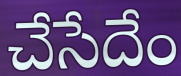
చేసేదేం